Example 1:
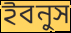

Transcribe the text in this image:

ইবনুস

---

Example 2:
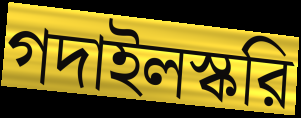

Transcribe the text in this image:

গদাইলস্করি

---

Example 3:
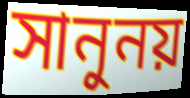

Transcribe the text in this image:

সানুনয়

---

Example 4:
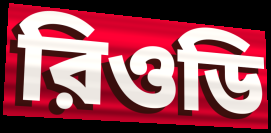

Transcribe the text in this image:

রিওডি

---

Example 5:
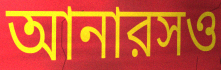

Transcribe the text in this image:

আনারসও